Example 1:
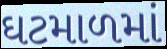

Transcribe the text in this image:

ઘટમાળમાં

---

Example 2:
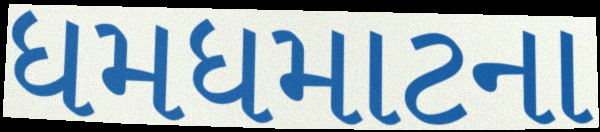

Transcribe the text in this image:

ધમધમાટના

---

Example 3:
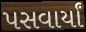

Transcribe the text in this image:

પસવાર્યાં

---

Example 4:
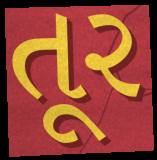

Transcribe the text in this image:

તૂર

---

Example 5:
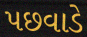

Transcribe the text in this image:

પછવાડે